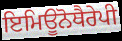
ਇਮਿਊਨੋਥੈਰੇਪੀ